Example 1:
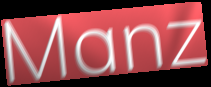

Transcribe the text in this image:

Manz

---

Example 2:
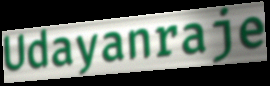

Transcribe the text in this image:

Udayanraje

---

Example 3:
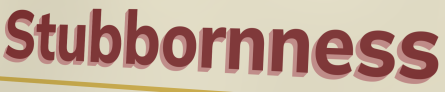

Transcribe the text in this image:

Stubbornness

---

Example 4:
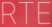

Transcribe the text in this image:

RTE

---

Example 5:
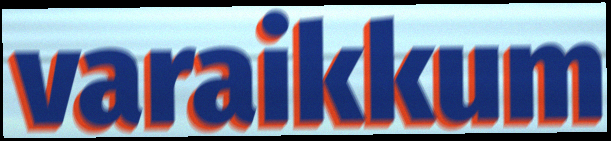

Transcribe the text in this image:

varaikkum